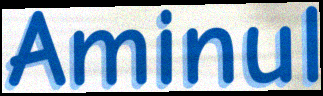
Aminul